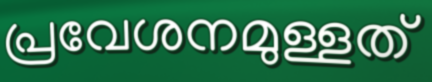
പ്രവേശനമുള്ളത്